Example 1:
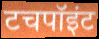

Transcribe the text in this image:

टचपॉइंट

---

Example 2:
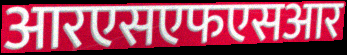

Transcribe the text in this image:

आरएसएफएसआर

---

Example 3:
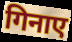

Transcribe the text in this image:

गिनाए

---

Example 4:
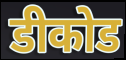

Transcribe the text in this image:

डीकोड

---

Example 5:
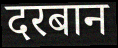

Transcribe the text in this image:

दरबान